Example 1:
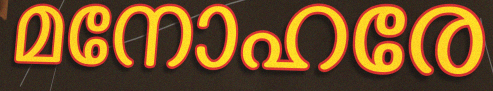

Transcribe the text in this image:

മനോഹരേ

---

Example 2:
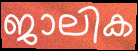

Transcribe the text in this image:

ജാലിക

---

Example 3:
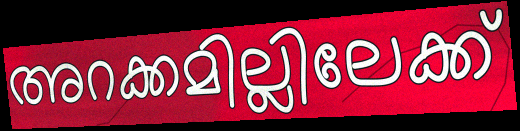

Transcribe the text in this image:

അറക്കമില്ലിലേക്ക്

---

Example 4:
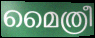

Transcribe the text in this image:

മൈത്രീ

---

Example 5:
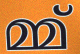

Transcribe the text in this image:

മ്മ്